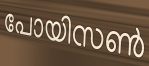
പോയിസൺ